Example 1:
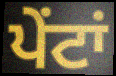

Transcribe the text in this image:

ਪੇਂਟਾਂ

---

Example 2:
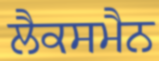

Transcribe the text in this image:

ਲੈਕਸਮੈਨ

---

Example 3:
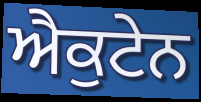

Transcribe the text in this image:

ਐਕੁਟੇਨ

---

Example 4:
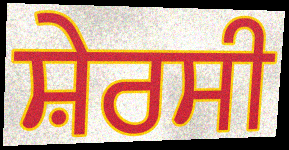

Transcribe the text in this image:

ਸ਼ੇਰਸੀ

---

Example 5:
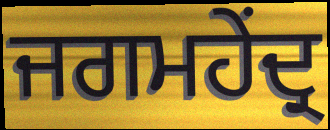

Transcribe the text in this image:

ਜਗਮਹੇਂਦ੍ਰ